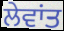
ਲੇਵਾਂਤ